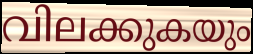
വിലക്കുകയും